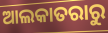
ଆଲକାତରାରୁ